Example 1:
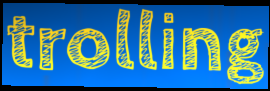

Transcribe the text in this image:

trolling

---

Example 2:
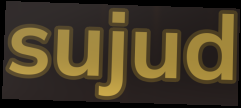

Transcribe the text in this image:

sujud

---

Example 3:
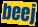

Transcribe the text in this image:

beej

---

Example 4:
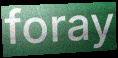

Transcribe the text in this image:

foray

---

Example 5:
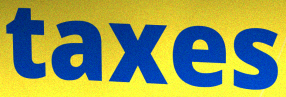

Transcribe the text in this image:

taxes